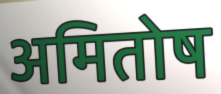
अमितोष